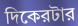
দিকেরটার